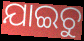
ଯାଇଚୁ